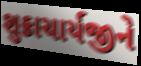
શુક્રાચાર્યજીને